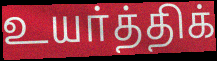
உயர்த்திக்